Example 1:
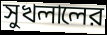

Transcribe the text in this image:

সুখলালের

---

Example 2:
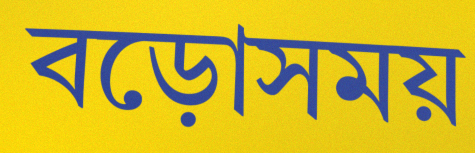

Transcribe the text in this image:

বড়োসময়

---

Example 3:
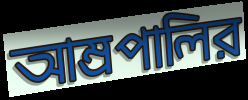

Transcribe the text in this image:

আম্রপালির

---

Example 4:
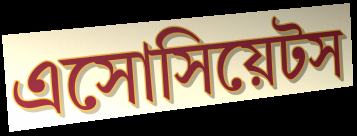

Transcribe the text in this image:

এসোসিয়েটস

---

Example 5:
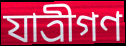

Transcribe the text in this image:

যাত্রীগণ